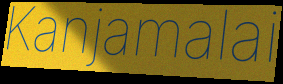
Kanjamalai